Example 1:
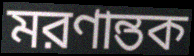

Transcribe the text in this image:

মরণান্তক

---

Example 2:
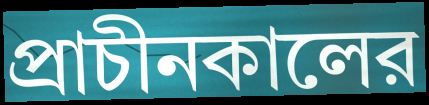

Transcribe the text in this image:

প্রাচীনকালের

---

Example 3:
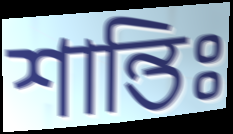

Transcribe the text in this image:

শান্তিঃ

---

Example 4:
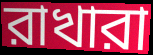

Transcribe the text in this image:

রাখারা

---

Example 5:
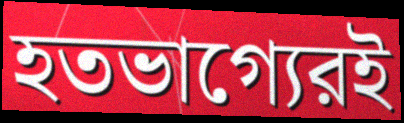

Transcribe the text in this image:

হতভাগ্যেরই